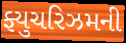
ફ્યુચરિઝમની